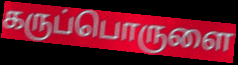
கருப்பொருளை